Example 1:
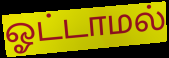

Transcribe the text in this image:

ஓட்டாமல்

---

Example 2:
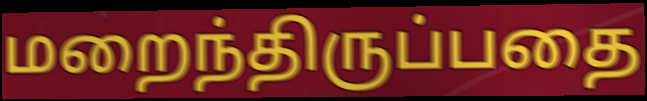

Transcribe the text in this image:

மறைந்திருப்பதை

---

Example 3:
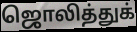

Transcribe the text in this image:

ஜொலித்துக்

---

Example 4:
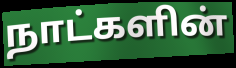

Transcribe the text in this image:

நாட்களின்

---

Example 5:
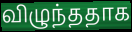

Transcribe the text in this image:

விழுந்ததாக